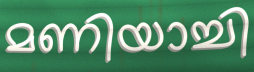
മണിയാച്ചി